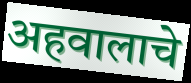
अहवालाचे